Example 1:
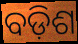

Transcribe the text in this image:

ବଡ଼ିଶ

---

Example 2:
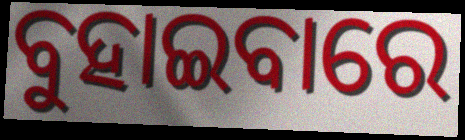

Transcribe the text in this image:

ବୁହାଇବାରେ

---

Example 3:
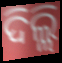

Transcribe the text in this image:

ଦିଲ୍ଲି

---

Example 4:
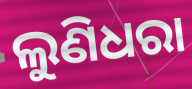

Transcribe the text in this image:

ଲୁଣିଧରା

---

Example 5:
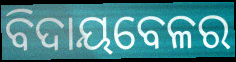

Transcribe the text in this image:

ବିଦାୟବେଳର